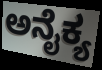
ಅನೈಕ್ಯ